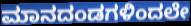
ಮಾನದಂಡಗಳಿಂದಲೇ